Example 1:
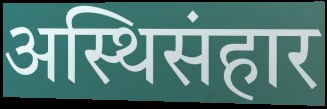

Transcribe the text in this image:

अस्थिसंहार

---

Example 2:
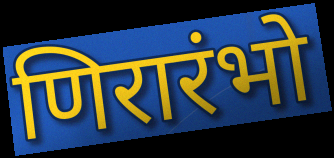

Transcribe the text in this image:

णिरारंभो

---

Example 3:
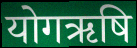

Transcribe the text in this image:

योगऋषि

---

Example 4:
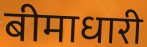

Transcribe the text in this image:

बीमाधारी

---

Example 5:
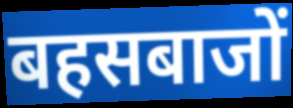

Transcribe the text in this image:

बहसबाजों